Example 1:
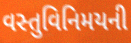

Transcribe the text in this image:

વસ્તુવિનિમયની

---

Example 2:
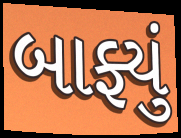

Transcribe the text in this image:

બાફ્યું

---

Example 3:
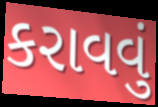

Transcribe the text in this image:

કરાવવું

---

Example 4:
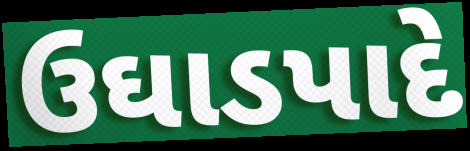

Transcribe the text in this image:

ઉઘાડપાદે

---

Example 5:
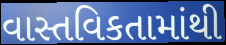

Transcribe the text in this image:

વાસ્તવિકતામાંથી